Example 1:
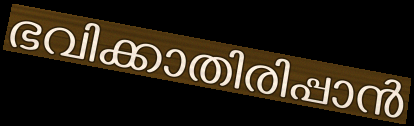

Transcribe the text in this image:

ഭവിക്കാതിരിപ്പാൻ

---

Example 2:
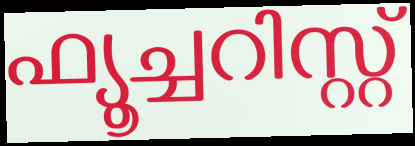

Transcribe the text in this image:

ഫ്യൂച്ചറിസ്റ്റ്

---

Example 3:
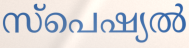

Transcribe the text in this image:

സ്പെഷ്യൽ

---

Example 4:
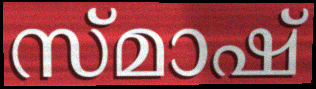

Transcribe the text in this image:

സ്മാഷ്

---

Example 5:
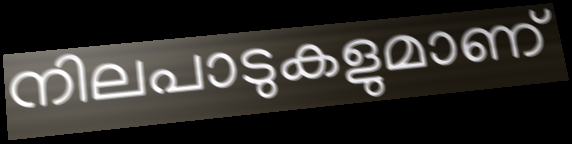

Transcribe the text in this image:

നിലപാടുകളുമാണ്